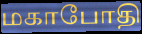
மகாபோதி